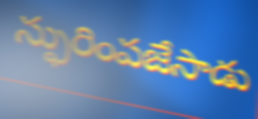
స్ఫురింపజేసాడు